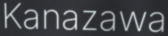
Kanazawa